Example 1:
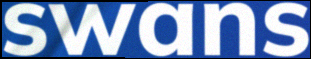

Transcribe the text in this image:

swans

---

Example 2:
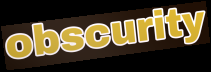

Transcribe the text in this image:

obscurity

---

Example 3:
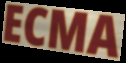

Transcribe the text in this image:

ECMA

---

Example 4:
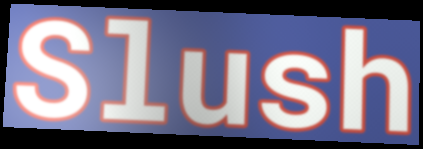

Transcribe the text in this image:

Slush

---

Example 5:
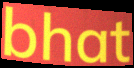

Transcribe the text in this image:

bhat